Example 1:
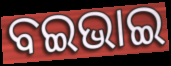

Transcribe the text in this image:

ବଇଭାଇ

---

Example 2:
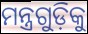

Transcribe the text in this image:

ମନ୍ତ୍ରଗୁଡ଼ିକୁ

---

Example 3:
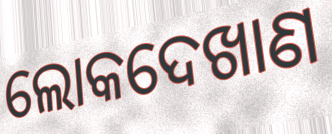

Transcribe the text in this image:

ଲୋକଦେଖାଣ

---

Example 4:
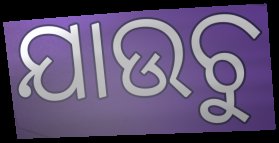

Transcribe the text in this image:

ଯାଉଚୁ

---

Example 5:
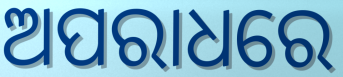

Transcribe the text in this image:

ଅପରାଧରେ